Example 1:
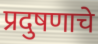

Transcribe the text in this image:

प्रदुषणाचे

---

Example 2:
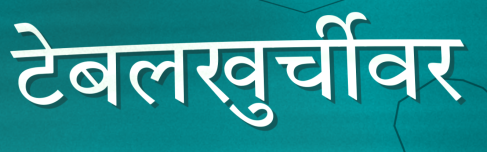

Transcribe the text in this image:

टेबलखुर्चीवर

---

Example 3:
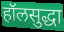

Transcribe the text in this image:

हॉलसुद्धा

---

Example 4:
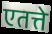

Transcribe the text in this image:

एतत्ते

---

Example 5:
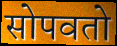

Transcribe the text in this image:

सोपवतो